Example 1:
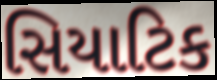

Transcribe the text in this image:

સિયાટિક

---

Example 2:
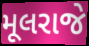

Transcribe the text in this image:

મૂલરાજે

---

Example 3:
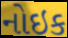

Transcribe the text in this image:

નોઇક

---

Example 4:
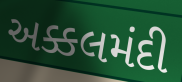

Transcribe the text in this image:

અક્કલમંદી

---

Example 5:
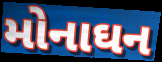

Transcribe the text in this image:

મોનાઘન